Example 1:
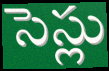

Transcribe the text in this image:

సెస్లు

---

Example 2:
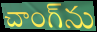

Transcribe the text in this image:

చాంగ్‌ను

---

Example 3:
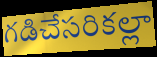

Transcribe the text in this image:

గడిచేసరికల్లా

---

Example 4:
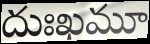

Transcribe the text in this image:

దుఃఖమూ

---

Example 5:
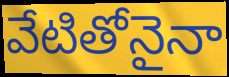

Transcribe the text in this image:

వేటితోనైనా